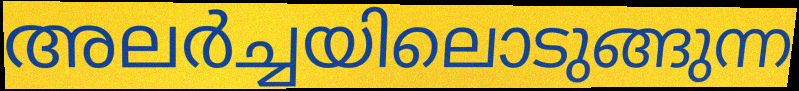
അലർച്ചയിലൊടുങ്ങുന്ന